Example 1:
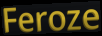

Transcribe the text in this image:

Feroze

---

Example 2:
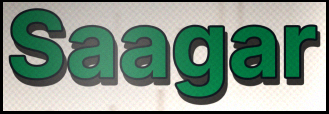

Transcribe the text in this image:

Saagar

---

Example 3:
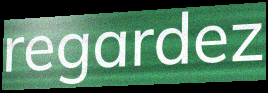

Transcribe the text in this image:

regardez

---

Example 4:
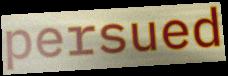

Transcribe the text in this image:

persued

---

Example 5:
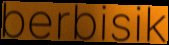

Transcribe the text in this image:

berbisik